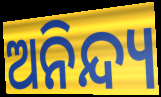
ଅନିନ୍ଦ୍ୟ